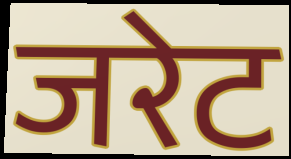
जरेट